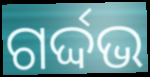
ଗର୍ଦ୍ଦଭ